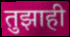
तुझाही